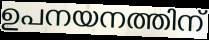
ഉപനയനത്തിന്